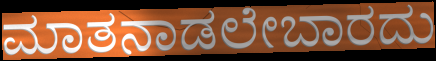
ಮಾತನಾಡಲೇಬಾರದು